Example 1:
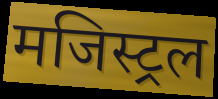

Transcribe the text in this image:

मजिस्ट्रल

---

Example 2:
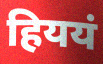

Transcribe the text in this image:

हिययं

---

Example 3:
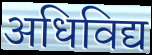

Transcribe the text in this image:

अधिविद्य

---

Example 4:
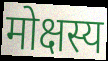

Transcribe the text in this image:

मोक्षस्य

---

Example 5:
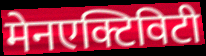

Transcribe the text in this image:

मेनएक्टिविटी